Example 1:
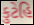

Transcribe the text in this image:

કુટેહિ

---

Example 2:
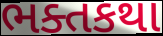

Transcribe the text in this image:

ભક્તકથા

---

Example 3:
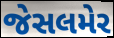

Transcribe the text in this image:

જેસલમેર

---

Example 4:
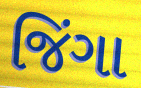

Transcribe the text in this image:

જિંગા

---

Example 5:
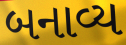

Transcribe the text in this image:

બનાવ્ય